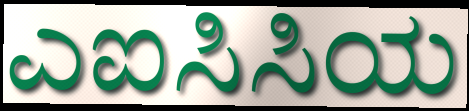
ಎಐಸಿಸಿಯ